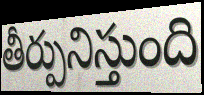
తీర్పునిస్తుంది